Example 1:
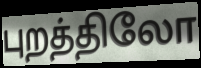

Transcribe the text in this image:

புறத்திலோ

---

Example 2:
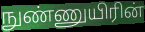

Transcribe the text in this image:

நுண்ணுயிரின்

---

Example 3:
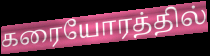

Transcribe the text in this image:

கரையோரத்தில்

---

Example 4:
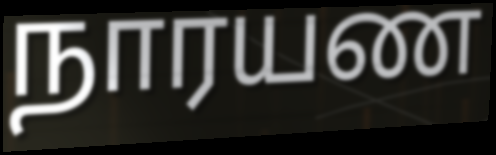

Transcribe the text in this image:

நாரயண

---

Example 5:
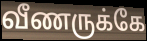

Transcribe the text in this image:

வீணருக்கே